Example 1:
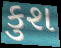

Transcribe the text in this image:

કુશ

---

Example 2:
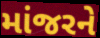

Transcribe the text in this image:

માંજરને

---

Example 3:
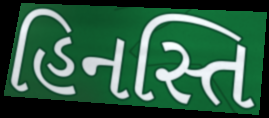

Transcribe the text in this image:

હિનસ્તિ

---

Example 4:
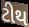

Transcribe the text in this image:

ટીથ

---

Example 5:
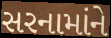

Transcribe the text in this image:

સરનામાંને